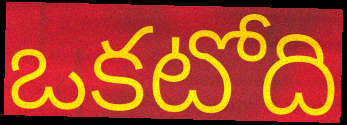
ఒకటోది